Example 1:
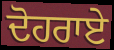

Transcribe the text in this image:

ਦੋਹਰਾਏ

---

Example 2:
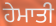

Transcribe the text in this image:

ਹੇਮਾਤੀ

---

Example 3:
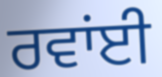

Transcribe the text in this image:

ਰਵਾਂਈ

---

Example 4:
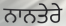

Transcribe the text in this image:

ਨਾਨਤੇਰੇ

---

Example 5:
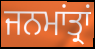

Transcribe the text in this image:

ਜਨਮਾਂਤ੍ਰਾਂ